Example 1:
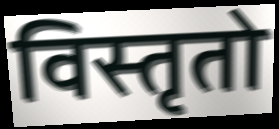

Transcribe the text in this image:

विस्तृतो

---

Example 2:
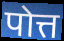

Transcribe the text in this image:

पोत्त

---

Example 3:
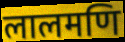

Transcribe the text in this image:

लालमणि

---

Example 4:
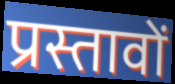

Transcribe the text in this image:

प्रस्‍तावों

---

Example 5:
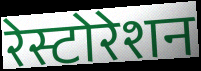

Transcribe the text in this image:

रेस्टोरेशन